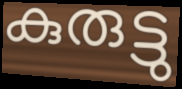
കുരുട്ടു